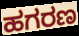
ಹಗರಣ